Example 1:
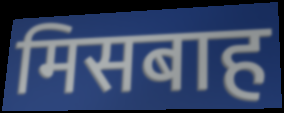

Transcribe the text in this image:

मिसबाह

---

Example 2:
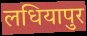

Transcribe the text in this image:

लधियापुर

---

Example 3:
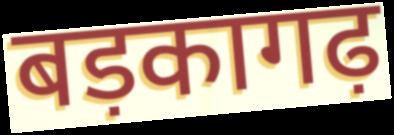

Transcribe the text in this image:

बड़कागढ़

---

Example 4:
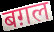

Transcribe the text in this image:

बग़ल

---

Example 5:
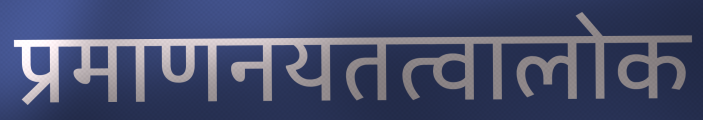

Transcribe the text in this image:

प्रमाणनयतत्वालोक